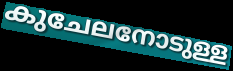
കുചേലനോടുള്ള